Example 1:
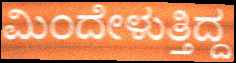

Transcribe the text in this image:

ಮಿಂದೇಳುತ್ತಿದ್ದ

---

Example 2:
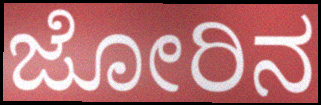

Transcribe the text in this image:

ಜೋರಿನ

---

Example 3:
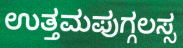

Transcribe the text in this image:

ಉತ್ತಮಪುಗ್ಗಲಸ್ಸ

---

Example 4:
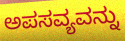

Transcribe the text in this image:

ಅಪಸವ್ಯವನ್ನು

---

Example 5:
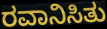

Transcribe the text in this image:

ರವಾನಿಸಿತು